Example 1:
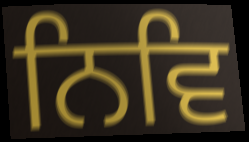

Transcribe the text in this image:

ਨਿਵਿ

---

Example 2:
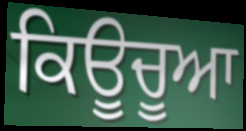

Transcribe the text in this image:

ਕਿਊਚੂਆ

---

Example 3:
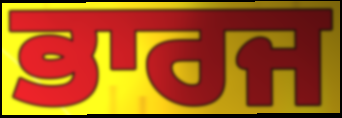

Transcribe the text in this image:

ਭਾਰਜ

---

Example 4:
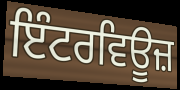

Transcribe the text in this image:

ਇੰਟਰਵਿਊਜ਼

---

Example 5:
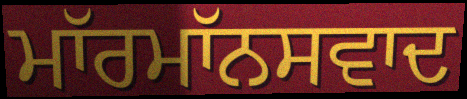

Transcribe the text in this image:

ਮਾੱਰਮਾੱਨਸਵਾਦ